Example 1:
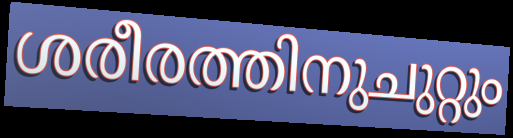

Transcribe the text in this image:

ശരീരത്തിനുചുറ്റും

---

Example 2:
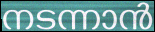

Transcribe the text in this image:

നടന്നാൻ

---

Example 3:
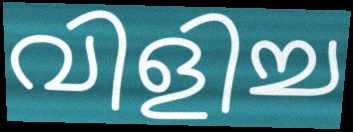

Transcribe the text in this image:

വിളിച്ച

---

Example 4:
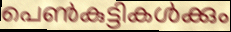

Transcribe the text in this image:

പെൺകുട്ടികൾക്കും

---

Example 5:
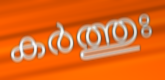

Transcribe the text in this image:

കർത്തുഃ